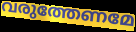
വരുത്തേണമേ